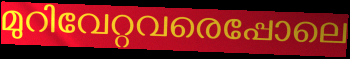
മുറിവേറ്റവരെപ്പോലെ